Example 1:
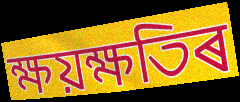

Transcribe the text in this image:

ক্ষয়ক্ষতিৰ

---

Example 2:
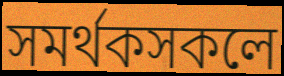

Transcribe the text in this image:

সমৰ্থকসকলে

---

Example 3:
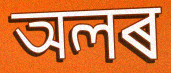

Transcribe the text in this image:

অলৰ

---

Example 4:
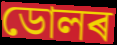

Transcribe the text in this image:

ডোলৰ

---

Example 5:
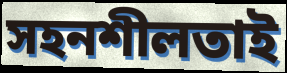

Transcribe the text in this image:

সহনশীলতাই